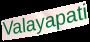
Valayapati